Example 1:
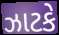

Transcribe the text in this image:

ઝાટકે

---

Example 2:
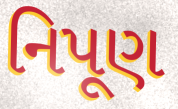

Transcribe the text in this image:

નિપૂણ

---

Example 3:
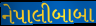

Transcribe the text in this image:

નેપાલીબાબા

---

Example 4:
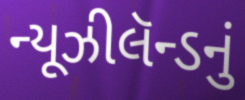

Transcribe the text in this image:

ન્યૂઝીલૅન્ડનું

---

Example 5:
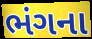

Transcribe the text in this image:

ભંગના